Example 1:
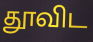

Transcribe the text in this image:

தூவிட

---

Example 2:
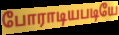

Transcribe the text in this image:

போராடியபடியே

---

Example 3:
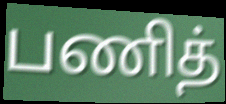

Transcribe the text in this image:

பணித்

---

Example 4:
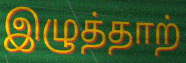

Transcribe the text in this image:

இழுத்தாற்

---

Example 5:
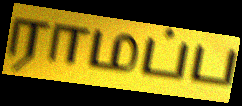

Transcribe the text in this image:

ராமப்ப